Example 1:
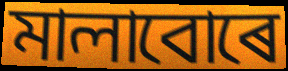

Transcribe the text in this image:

মালাবোৰে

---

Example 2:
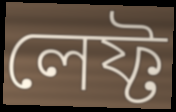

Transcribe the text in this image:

লেফ্ট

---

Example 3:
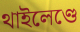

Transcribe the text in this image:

থাইলেণ্ডে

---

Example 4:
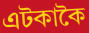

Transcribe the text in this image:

এটকাকৈ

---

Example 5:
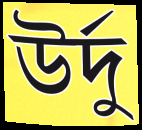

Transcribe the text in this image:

উৰ্দু